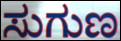
ಸುಗುಣ